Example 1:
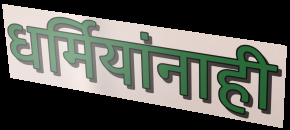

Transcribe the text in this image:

धर्मियांनाही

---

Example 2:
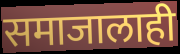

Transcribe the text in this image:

समाजालाही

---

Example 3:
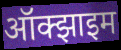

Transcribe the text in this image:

ऑक्झाइम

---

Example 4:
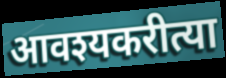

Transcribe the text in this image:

आवश्यकरीत्या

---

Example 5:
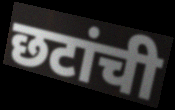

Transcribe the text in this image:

छटांची